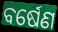
ବର୍ଷେଣ